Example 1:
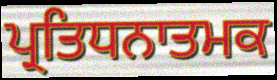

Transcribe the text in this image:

ਪ੍ਰਤਿਧਨਾਤਮਕ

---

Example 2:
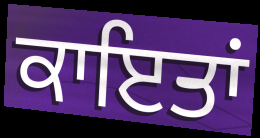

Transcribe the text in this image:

ਕਾਇਤਾਂ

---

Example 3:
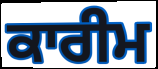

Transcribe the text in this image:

ਕਾਰੀਮ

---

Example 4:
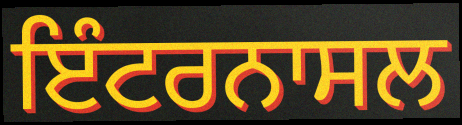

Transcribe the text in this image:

ਇੰਟਰਨਾਸਲ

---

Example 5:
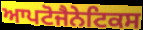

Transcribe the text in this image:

ਆਪਟੋਜੈਨੇਟਿਕਸ